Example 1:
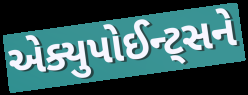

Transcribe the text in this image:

એક્યુપોઈન્ટ્સને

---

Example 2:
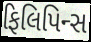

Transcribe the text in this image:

ફિલિપિન્સ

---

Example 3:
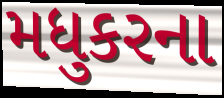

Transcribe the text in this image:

મધુકરના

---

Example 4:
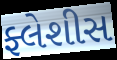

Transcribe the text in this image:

ફ્લેશીસ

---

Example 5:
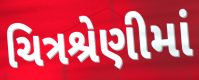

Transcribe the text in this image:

ચિત્રશ્રેણીમાં